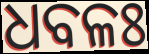
ଧବଳଃ